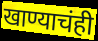
खाण्याचंही